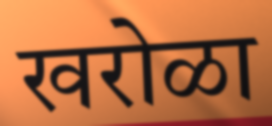
खरोळा